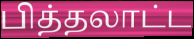
பித்தலாட்ட